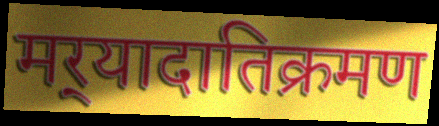
मर्यादातिक्रमण